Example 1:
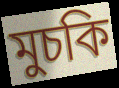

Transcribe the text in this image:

মুচকি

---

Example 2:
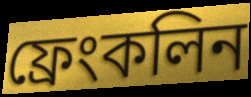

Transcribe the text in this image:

ফ্ৰেংকলিন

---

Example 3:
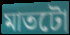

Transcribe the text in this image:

মাতটো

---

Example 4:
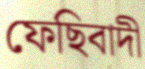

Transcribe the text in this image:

ফেছিবাদী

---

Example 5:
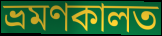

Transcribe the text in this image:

ভ্ৰমণকালত